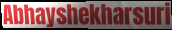
Abhayshekharsuri